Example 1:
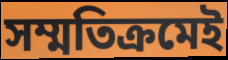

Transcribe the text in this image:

সম্মতিক্রমেই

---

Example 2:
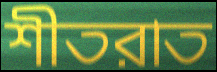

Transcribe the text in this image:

শীতরাত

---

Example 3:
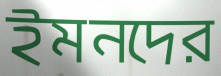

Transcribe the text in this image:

ইমনদের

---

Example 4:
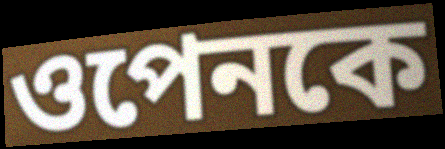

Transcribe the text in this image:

ওপেনকে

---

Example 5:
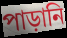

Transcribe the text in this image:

পাড়ানি